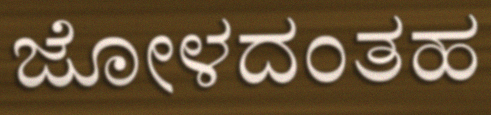
ಜೋಳದಂತಹ